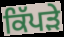
ਕਿੱਪੜੇ